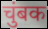
चुंबक